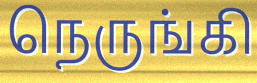
நெருங்கி